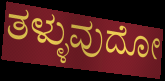
ತಳ್ಳುವುದೋ